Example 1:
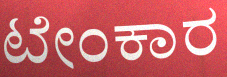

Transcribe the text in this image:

ಟೇಂಕಾರ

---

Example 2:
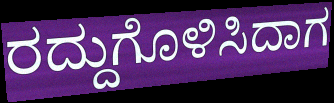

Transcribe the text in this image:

ರದ್ದುಗೊಳಿಸಿದಾಗ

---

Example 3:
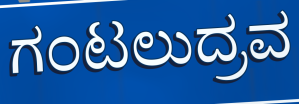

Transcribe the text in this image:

ಗಂಟಲುದ್ರವ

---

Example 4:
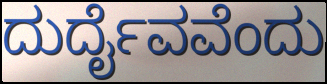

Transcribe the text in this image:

ದುರ್ದೈವವೆಂದು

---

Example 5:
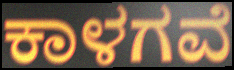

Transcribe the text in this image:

ಕಾಳಗವೆ